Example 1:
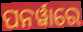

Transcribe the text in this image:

ପନର୍ୱାରେ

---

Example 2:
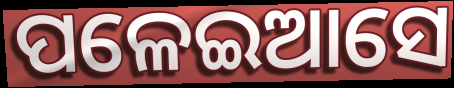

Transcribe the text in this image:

ପଳେଇଆସେ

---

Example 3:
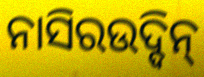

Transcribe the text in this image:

ନାସିରଉଦ୍ଦିନ୍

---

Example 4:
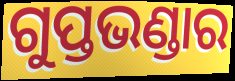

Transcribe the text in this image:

ଗୁପ୍ତଭଣ୍ଡାର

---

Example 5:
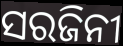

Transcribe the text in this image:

ସରଜିନୀ